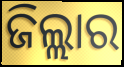
ଜିଲ୍ଲାର